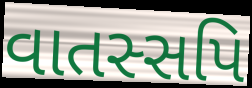
વાતસ્સપિ